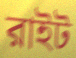
রাইট